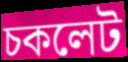
চকলেট